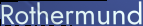
Rothermund